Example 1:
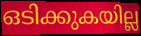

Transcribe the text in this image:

ഒടിക്കുകയില്ല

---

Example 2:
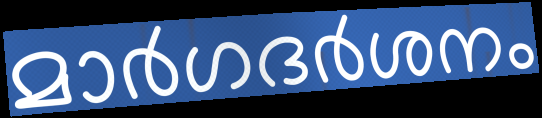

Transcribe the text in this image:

മാർഗദർശനം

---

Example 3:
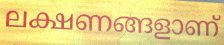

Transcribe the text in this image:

ലക്ഷണങ്ങളാണ്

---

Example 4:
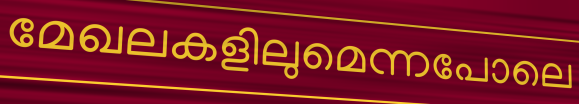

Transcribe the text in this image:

മേഖലകളിലുമെന്നപോലെ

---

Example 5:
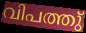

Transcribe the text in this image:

വിപത്തു്